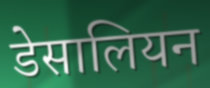
डेसालियन